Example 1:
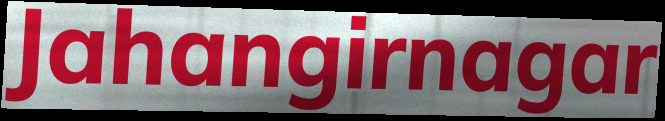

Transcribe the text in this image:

Jahangirnagar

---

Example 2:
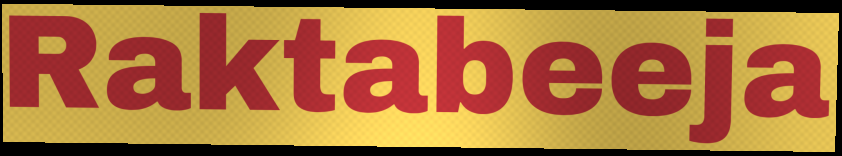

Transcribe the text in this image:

Raktabeeja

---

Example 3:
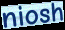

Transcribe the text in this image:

niosh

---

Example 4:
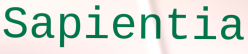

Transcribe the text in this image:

Sapientia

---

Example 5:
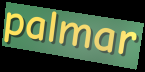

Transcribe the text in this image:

palmar